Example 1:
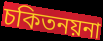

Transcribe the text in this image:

চকিতনয়না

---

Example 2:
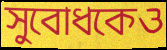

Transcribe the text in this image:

সুবোধকেও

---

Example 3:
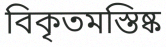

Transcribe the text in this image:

বিকৃতমস্তিষ্ক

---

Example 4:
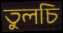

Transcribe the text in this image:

তুলচি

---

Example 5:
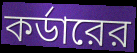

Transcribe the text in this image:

কর্ডারের